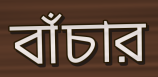
বাঁচার